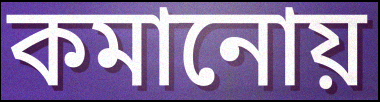
কমানোয়